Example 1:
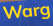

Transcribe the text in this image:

Warg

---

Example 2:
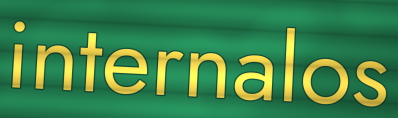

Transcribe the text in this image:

internalos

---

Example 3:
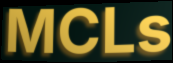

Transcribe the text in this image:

MCLs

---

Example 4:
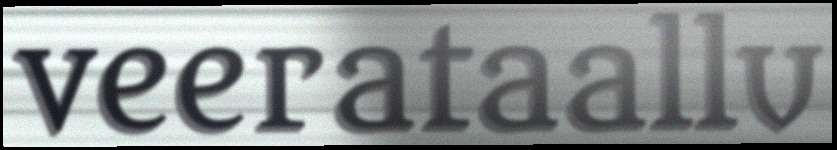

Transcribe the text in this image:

veerataallu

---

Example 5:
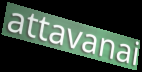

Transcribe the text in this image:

attavanai